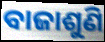
ବାଜାଶୁଣି